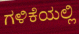
ಗಳಿಕೆಯಲ್ಲಿ